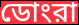
ডোংরা